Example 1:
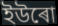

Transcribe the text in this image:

ইউৰো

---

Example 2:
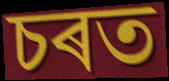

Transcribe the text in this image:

চৰত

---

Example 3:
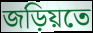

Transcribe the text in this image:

জড়িয়তে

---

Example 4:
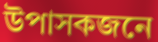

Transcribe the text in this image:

উপাসকজনে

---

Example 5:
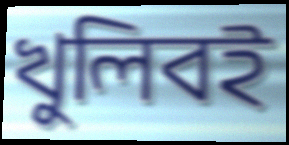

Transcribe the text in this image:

খুলিবই